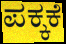
ಪಕ್ಕಕೆ